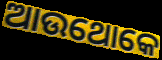
ଆଉଥୋକେ